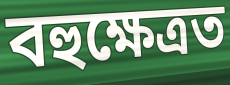
বহুক্ষেত্ৰত